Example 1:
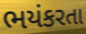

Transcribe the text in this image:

ભયંકરતા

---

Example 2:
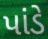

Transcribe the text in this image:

પાંડે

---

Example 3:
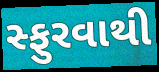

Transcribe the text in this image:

સ્ફુરવાથી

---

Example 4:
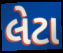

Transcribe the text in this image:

લેટા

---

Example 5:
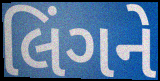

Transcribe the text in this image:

લિંગને